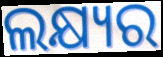
ଲକ୍ଷ୍ୟର